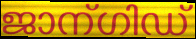
ജാന്ഗിഡ്